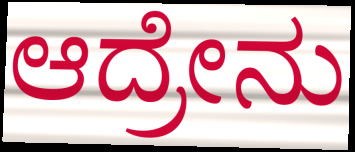
ಆದ್ರೇನು